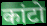
कांटो